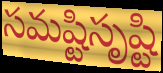
సమష్టిసృష్టి